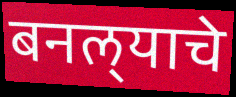
बनल्याचे